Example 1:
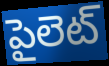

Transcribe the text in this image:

పైలెట్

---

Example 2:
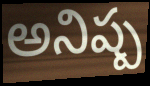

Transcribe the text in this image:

అనిష్ప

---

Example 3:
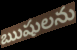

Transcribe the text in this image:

ఋషులను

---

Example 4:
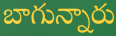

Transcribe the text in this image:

బాగున్నారు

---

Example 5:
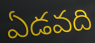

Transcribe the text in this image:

ఏడవది